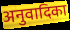
अनुवादिका